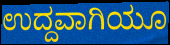
ಉದ್ದವಾಗಿಯೂ